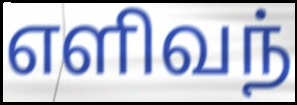
எளிவந்